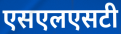
एसएलएसटी